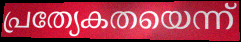
പ്രത്യേകതയെന്ന്